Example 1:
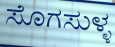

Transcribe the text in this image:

ಸೊಗಸುಳ್ಳ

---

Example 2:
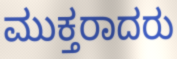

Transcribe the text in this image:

ಮುಕ್ತರಾದರು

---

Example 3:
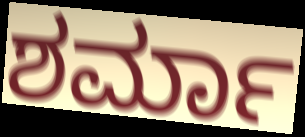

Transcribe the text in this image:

ಶರ್ಮಾ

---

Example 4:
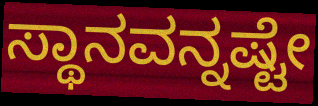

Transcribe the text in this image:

ಸ್ಥಾನವನ್ನಷ್ಟೇ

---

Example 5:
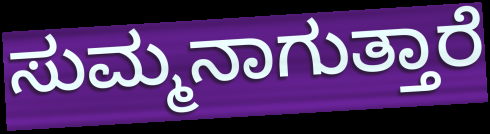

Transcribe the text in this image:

ಸುಮ್ಮನಾಗುತ್ತಾರೆ